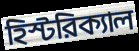
হিস্টরিক্যাল